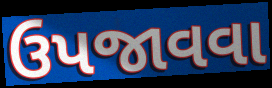
ઉપજાવવા